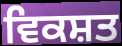
ਵਿਕਸ਼ਤ